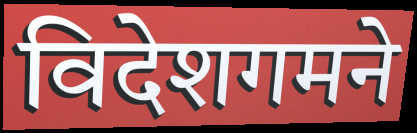
विदेशगमने